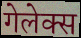
गेलेक्स